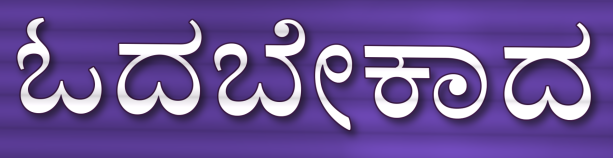
ಓದಬೇಕಾದ